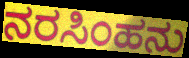
ನರಸಿಂಹನು